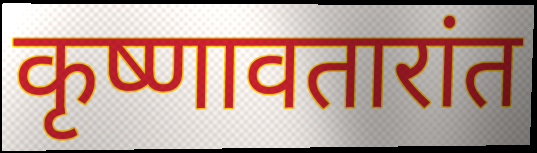
कृष्णावतारांत